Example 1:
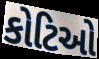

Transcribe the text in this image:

કોટિઓ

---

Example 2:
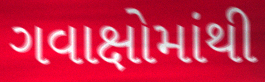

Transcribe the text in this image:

ગવાક્ષોમાંથી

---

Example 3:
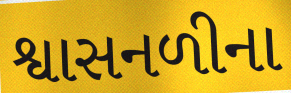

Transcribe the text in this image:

શ્વાસનળીના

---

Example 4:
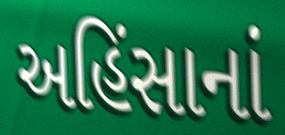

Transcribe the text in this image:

અહિંસાનાં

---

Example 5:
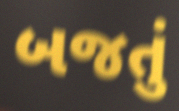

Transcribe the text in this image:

બજતું